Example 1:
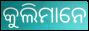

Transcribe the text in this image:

କୁଲିମାନେ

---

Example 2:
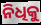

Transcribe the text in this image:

ନିଧିକୁ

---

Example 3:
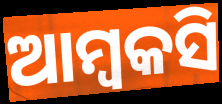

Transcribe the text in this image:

ଆମ୍ବକସି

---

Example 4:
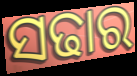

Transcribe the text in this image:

ସଢାର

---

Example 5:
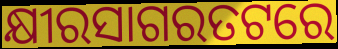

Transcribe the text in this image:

କ୍ଷୀରସାଗରତଟରେ